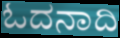
ಓದನಾದಿ